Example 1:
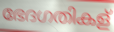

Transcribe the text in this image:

ഭേദഗതികള്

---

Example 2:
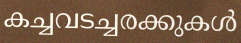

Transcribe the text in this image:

കച്ചവടച്ചരക്കുകൾ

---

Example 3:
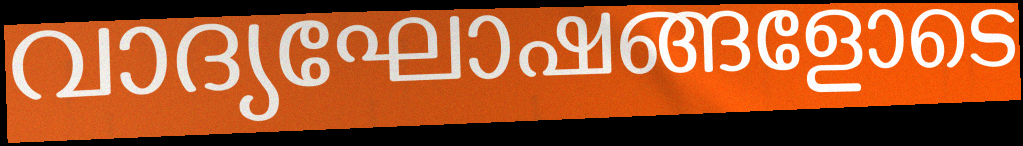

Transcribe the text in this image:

വാദ്യഘോഷങ്ങളോടെ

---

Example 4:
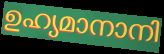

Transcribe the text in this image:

ഉഹ്യമാനാനി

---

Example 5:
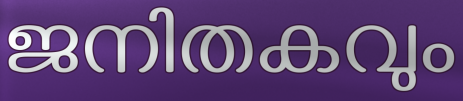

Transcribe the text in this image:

ജനിതകവും